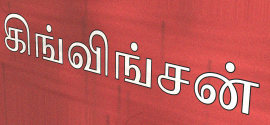
கிங்விங்சன்